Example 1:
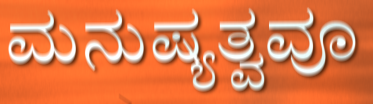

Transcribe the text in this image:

ಮನುಷ್ಯತ್ವವೂ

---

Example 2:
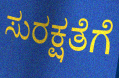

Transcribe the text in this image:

ಸುರಕ್ಷತೆಗೆ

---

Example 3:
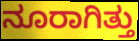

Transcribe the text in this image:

ನೂರಾಗಿತ್ತು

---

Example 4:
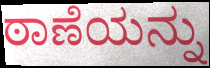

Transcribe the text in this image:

ಠಾಣೆಯನ್ನು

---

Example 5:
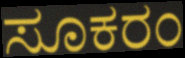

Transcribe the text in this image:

ಸೂಕರಂ